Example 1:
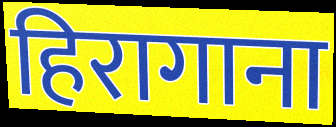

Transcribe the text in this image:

हिरागाना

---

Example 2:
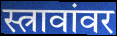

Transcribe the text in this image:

स्त्रावांवर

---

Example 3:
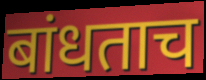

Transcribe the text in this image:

बांधताच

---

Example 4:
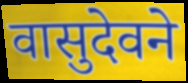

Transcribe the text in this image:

वासुदेवने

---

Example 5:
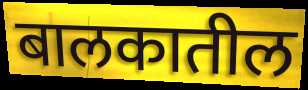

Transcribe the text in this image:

बालकातील